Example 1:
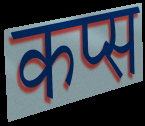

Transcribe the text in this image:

कप्स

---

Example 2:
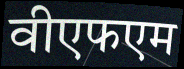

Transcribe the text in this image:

वीएफएम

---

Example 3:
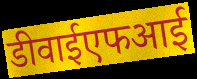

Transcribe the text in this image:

डीवाईएफआई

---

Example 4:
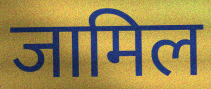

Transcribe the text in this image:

जामिल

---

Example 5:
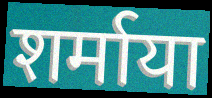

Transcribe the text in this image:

शर्माया